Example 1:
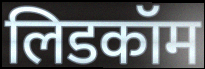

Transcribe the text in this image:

लिडकॉम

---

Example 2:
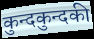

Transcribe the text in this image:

कुन्दकुन्दकी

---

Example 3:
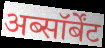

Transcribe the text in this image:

अब्सॉर्बेंट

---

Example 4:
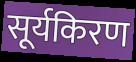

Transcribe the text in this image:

सूर्यकिरण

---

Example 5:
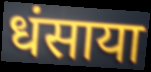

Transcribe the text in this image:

धंसाया